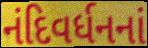
નંદિવર્ધનનાં